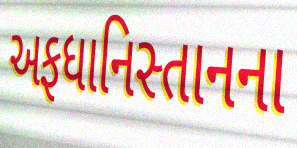
અફધાનિસ્તાનના